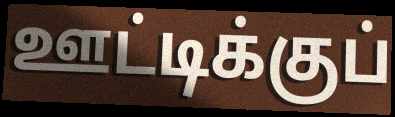
ஊட்டிக்குப்